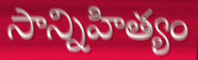
సాన్నిహిత్యం